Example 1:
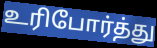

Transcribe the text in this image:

உரிபோர்த்து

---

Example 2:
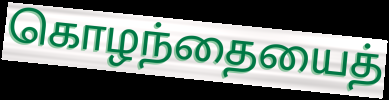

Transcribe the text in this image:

கொழந்தையைத்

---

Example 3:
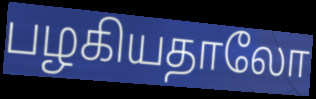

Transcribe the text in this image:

பழகியதாலோ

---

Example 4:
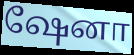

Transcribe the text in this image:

ஷேனா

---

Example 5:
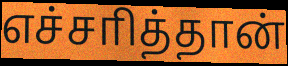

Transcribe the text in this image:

எச்சரித்தான்